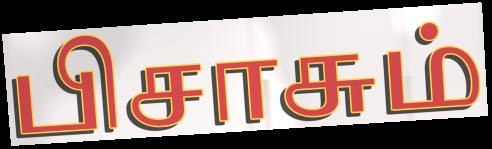
பிசாசும்